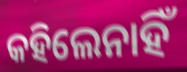
କହିଲେନାହିଁ